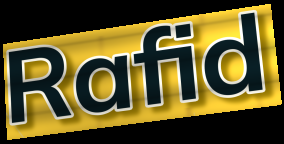
Rafid